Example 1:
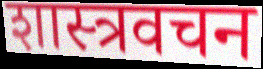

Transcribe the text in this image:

शास्त्रवचन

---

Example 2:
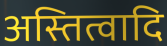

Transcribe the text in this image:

अस्तित्वादि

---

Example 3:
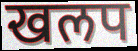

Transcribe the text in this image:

खलप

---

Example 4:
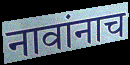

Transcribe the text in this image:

नावांनाच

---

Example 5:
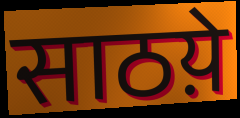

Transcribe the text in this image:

साठय़े